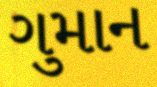
ગુમાન